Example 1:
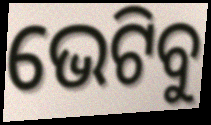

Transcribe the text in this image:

ଭେଟିବୁ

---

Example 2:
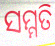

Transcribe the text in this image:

ସମ୍ମତି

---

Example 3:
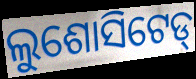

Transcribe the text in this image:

ଲୁଶୋସିଟେଡ୍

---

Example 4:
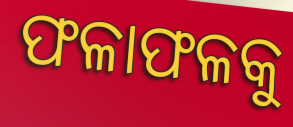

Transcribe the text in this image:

ଫଳାଫଳକୁ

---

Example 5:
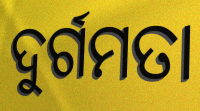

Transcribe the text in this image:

ଦୁର୍ଗମତା